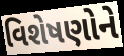
વિશેષણોને